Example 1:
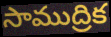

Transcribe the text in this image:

సాముద్రిక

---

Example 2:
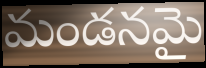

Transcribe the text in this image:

మండనమై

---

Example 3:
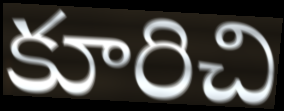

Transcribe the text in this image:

కూరిచి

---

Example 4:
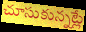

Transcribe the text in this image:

చూసుకున్నట్లే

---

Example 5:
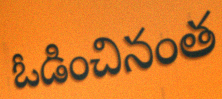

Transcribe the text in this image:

ఓడించినంత